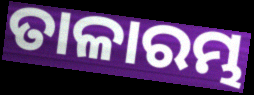
ତାଳାରମ୍ଭ